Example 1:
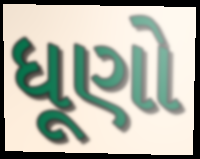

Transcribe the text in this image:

ધૂણો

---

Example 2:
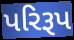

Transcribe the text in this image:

પરિરૂપ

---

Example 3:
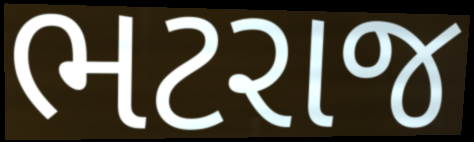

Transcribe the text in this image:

ભટરાજ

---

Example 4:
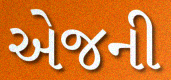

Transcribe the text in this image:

એજની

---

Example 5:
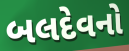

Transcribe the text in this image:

બલદેવનો